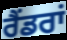
ਰੈਂਡਰਾਂ